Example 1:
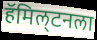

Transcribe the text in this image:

हॅमिल्टनला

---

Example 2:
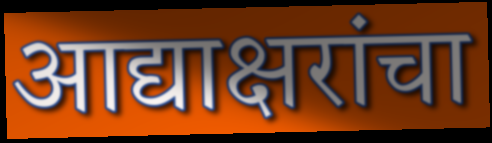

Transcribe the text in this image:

आद्याक्षरांचा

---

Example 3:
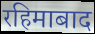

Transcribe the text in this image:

रहिमाबाद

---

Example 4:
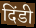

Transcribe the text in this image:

दिंडी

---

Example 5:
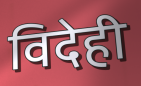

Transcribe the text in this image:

विदेही